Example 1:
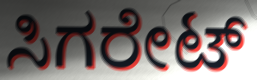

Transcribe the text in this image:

ಸಿಗರೇಟ್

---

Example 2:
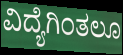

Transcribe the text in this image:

ವಿದ್ಯೆಗಿಂತಲೂ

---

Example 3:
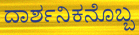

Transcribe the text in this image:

ದಾರ್ಶನಿಕನೊಬ್ಬ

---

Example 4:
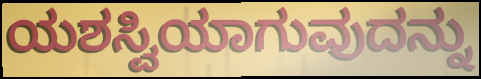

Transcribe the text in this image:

ಯಶಸ್ವಿಯಾಗುವುದನ್ನು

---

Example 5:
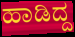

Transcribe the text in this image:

ಹಾಡಿದ್ದ